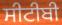
ਸੀਟੀਬੀ